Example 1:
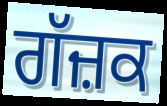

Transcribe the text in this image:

ਗੱਜ਼ਕ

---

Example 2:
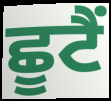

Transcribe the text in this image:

ਛੂਟੈਂ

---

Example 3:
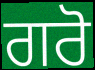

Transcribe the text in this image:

ਗਰੋ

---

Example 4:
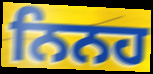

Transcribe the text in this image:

ਨਿਨਹ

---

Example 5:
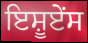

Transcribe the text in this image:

ਇਸ਼ੂਏਂਸ